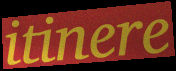
itinere